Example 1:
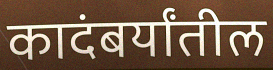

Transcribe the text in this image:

कादंबर्यांतील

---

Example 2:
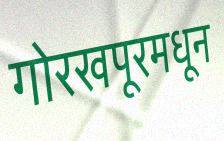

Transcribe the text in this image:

गोरखपूरमधून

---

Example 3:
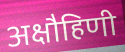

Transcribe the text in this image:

अक्षौहिणी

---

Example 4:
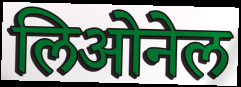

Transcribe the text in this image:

लिओनेल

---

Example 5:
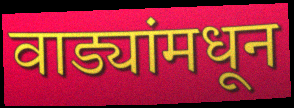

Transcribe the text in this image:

वाड्यांमधून